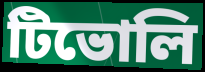
টিভোলি